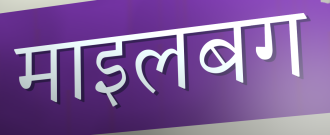
माइलबग